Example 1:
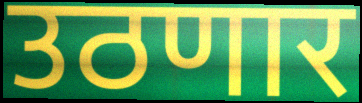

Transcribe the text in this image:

उठणार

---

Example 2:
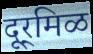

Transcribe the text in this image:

दूर्मिळ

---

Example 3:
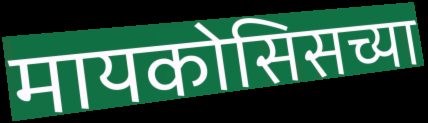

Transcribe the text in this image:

मायकोसिसच्या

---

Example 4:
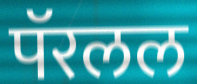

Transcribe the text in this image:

पॅरलल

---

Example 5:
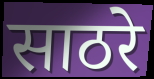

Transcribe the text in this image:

साठरे